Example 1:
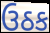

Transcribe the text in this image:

ઉઠક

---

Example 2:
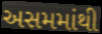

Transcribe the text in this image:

અસમમાંથી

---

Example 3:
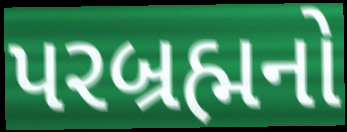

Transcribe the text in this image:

પરબ્રહ્મનો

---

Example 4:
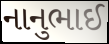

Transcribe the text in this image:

નાનુભાઈ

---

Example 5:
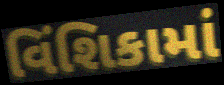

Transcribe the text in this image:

વિંશિકામાં